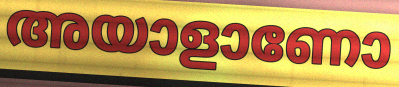
അയാളാണോ